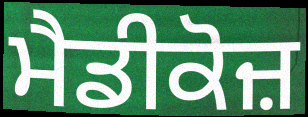
ਮੈਡੀਕੋਜ਼